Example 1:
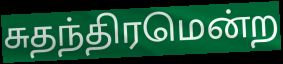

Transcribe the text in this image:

சுதந்திரமென்ற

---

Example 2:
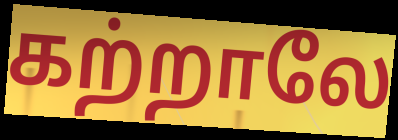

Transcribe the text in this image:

கற்றாலே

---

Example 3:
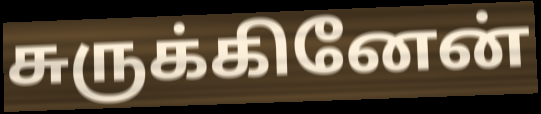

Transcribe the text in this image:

சுருக்கினேன்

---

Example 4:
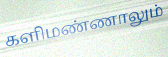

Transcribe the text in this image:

களிமண்ணாலும்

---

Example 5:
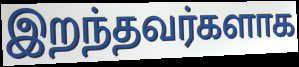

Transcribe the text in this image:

இறந்தவர்களாக